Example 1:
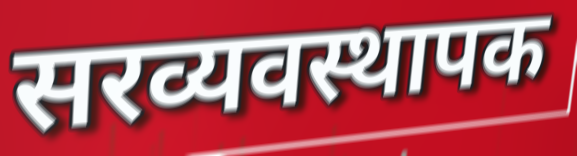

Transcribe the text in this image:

सरव्यवस्थापक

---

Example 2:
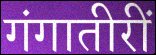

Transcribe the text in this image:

गंगातीरीं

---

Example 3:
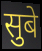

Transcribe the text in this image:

सुबे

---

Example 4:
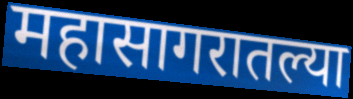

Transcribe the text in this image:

महासागरातल्या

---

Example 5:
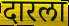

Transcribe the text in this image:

दारला